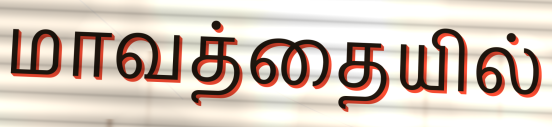
மாவத்தையில்